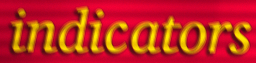
indicators